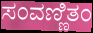
ಸಂವಣ್ಣಿತಂ